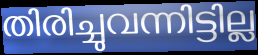
തിരിച്ചുവന്നിട്ടില്ല